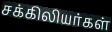
சக்கிலியர்கள்